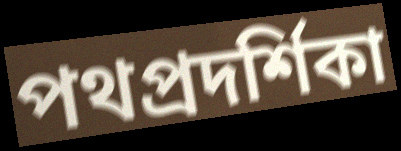
পথপ্রদর্শিকা